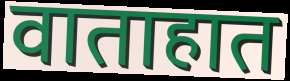
वाताहात